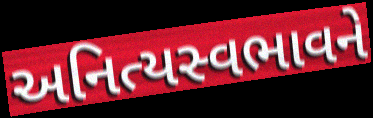
અનિત્યસ્વભાવને